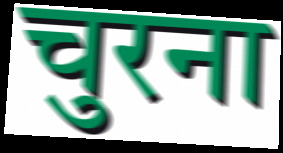
चुरना